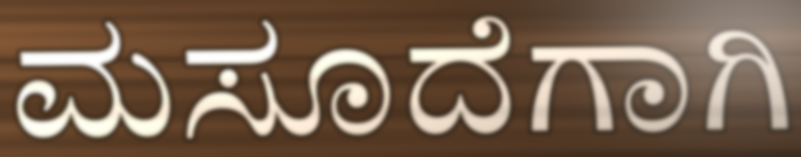
ಮಸೂದೆಗಾಗಿ